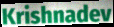
Krishnadev